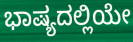
ಭಾಷ್ಯದಲ್ಲಿಯೇ